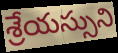
శ్రేయస్సుని